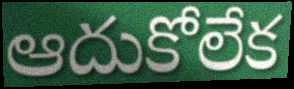
ఆదుకోలేక